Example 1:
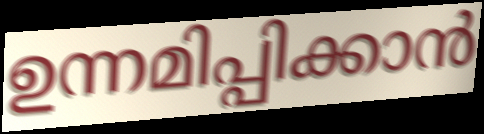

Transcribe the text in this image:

ഉന്നമിപ്പിക്കാൻ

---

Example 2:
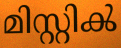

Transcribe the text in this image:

മിസ്റ്റിൿ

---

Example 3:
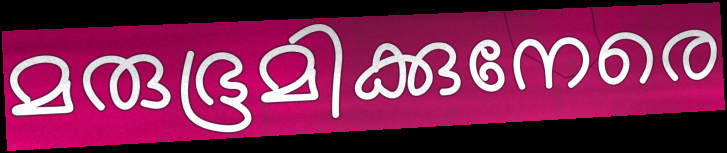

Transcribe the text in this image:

മരുഭൂമിക്കുനേരെ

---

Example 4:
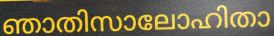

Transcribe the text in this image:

ഞാതിസാലോഹിതാ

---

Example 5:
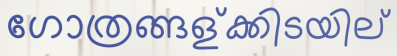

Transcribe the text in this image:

ഗോത്രങ്ങള്ക്കിടയില്